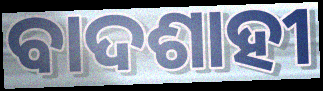
ବାଦଶାହୀ